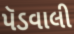
પૅડવાલી